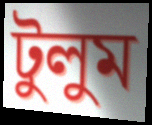
টুলুম